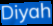
Diyah